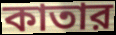
কাতার